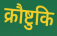
क्रौष्टुकि